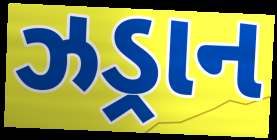
ઝડ્રાન